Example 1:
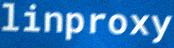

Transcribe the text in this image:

linproxy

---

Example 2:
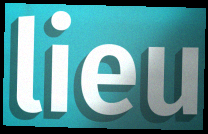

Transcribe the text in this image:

lieu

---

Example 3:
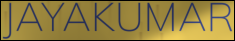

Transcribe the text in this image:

JAYAKUMAR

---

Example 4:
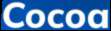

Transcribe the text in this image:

Cocoa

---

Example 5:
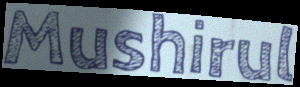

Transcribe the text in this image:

Mushirul